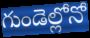
గుండెల్లోనో